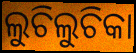
ଲୁଚିଲୁଚିକା